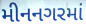
મીનનગરમાં